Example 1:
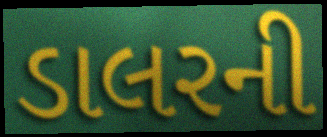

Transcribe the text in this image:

ડાલરની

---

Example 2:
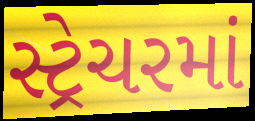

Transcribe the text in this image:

સ્ટ્રેચરમાં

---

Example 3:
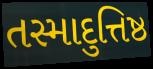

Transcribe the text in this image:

તસ્માદુત્તિષ્ઠ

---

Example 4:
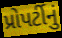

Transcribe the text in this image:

પ્રોપર્ટીનું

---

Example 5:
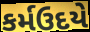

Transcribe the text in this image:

કર્મઉદયે